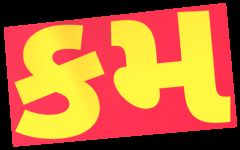
કમ